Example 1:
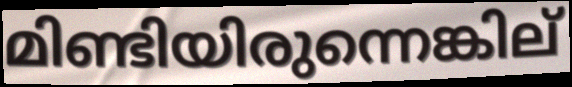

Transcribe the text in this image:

മിണ്ടിയിരുന്നെങ്കില്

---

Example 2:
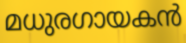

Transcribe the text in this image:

മധുരഗായകൻ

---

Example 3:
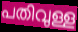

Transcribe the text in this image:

പതിവുള്ള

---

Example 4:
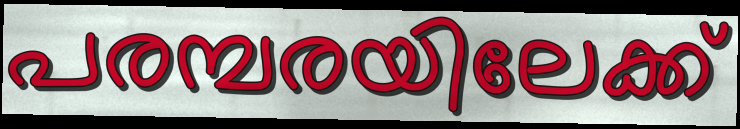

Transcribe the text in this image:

പരമ്പരയിലേക്ക്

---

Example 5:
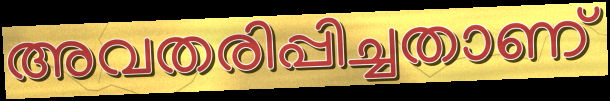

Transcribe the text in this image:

അവതരിപ്പിച്ചതാണ്